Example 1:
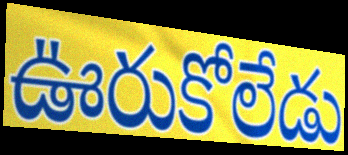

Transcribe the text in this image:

ఊరుకోలేడు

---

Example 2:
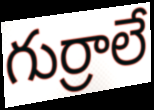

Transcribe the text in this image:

గుర్రాలే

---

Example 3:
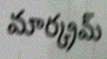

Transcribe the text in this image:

మార్క్రమ్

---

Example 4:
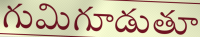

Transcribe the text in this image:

గుమిగూడుతూ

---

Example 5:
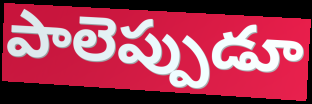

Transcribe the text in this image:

పాలెప్పుడూ